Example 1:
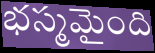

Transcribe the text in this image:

భస్మమైంది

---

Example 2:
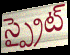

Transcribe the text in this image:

స్ప్రైట్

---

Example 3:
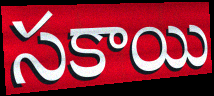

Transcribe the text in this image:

సకాయి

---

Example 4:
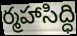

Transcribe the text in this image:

ర్మహాసిద్ధి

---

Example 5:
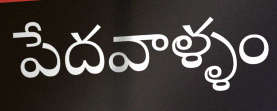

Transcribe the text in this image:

పేదవాళ్ళం